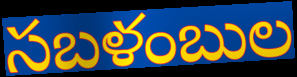
సబళంబుల